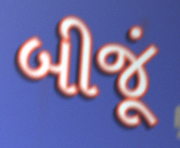
બીજૂં